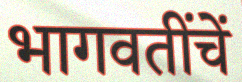
भागवतींचें